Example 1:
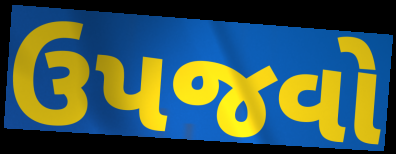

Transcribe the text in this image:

ઉપજવો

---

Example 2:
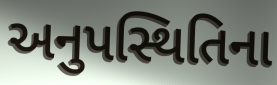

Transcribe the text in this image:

અનુપસ્થિતિના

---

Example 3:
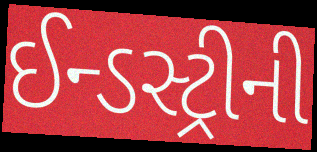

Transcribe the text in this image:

ઈન્ડસ્ટ્રીની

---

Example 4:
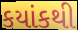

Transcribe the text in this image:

કયાંકથી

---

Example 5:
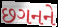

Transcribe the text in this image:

છગનને